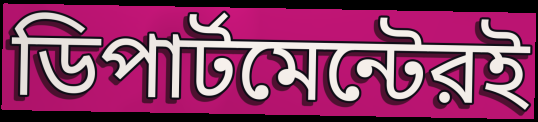
ডিপার্টমেন্টেরই